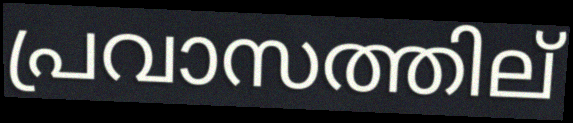
പ്രവാസത്തില്